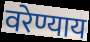
वरेण्याय